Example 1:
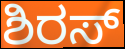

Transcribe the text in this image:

ಶಿರಸ್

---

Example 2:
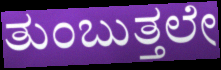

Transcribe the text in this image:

ತುಂಬುತ್ತಲೇ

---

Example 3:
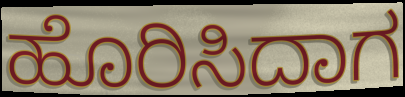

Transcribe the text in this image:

ಹೊರಿಸಿದಾಗ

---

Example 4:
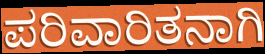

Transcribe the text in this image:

ಪರಿವಾರಿತನಾಗಿ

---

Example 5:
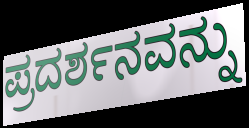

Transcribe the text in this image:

ಪ್ರದರ್ಶನವನ್ನು